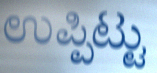
ಉಪ್ಪಿಟ್ಟು